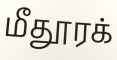
மீதூரக்